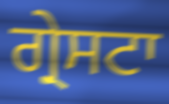
ਗ੍ਰੇਸਟਾ